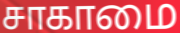
சாகாமை